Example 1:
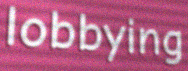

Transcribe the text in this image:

lobbying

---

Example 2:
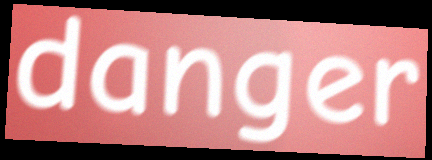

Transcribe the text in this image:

danger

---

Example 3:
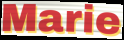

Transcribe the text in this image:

Marie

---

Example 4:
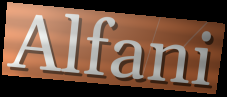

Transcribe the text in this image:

Alfani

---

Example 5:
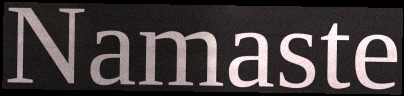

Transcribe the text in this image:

Namaste